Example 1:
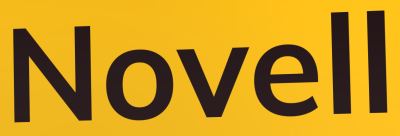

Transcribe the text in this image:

Novell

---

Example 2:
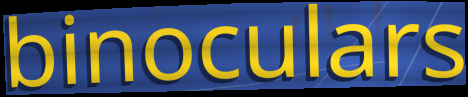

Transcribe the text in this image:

binoculars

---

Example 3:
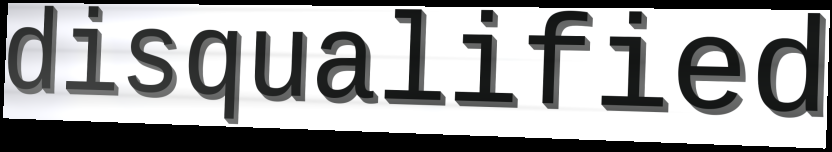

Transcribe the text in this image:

disqualified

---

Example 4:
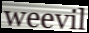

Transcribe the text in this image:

weevil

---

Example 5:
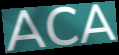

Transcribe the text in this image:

ACA